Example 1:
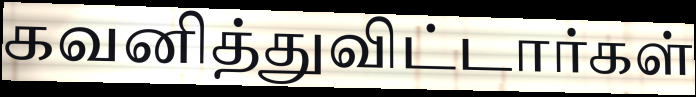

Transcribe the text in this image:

கவனித்துவிட்டார்கள்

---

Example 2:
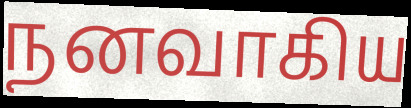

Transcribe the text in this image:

நனவாகிய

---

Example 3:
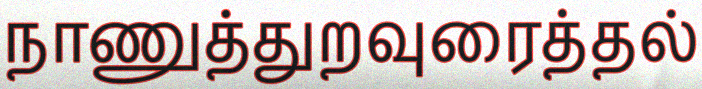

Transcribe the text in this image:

நாணுத்துறவுரைத்தல்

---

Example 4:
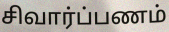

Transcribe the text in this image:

சிவார்ப்பணம்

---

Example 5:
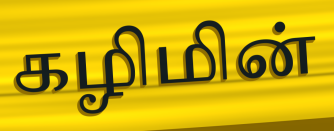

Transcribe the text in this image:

கழிமின்